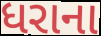
ધરાના